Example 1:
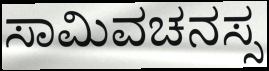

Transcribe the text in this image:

ಸಾಮಿವಚನಸ್ಸ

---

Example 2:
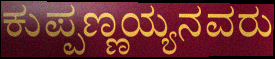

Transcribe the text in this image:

ಕುಪ್ಪಣ್ಣಯ್ಯನವರು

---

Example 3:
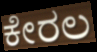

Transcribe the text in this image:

ಕೇರಲ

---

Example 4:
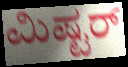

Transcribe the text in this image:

ಮಿಷ್ಟರ್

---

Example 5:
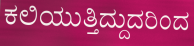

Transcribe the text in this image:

ಕಲಿಯುತ್ತಿದ್ದುದರಿಂದ